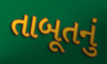
તાબૂતનું